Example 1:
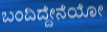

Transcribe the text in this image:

ಬಂದಿದ್ದೇನೆಯೋ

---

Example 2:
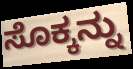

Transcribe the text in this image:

ಸೊಕ್ಕನ್ನು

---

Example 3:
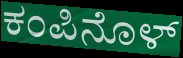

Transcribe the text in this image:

ಕಂಪಿನೊಳ್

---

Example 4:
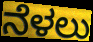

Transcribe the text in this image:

ನೆಳಲು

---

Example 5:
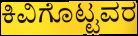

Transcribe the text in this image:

ಕಿವಿಗೊಟ್ಟವರ